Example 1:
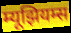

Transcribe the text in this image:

म्यूझियम्स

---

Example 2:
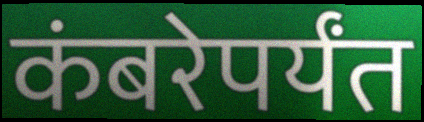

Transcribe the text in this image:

कंबरेपर्यंत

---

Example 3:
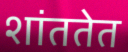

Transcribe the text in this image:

शांततेत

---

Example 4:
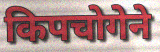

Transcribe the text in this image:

किपचोगेने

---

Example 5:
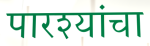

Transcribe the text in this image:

पारश्यांचा